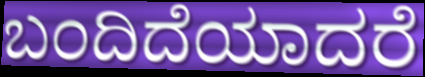
ಬಂದಿದೆಯಾದರೆ